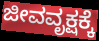
ಜೀವವೃಕ್ಷಕ್ಕೆ